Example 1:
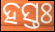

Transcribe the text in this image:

ହସ୍ତଃ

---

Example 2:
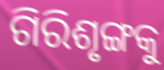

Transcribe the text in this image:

ଗିରିଶୃଙ୍ଗକୁ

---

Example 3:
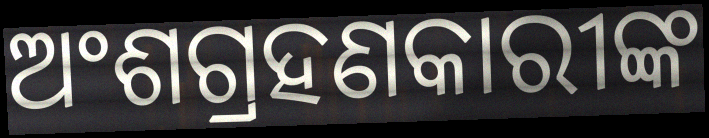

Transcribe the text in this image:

ଅଂଶଗ୍ରହଣକାରୀଙ୍କ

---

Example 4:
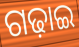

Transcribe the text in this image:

ଗଢ଼ାଇ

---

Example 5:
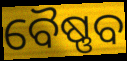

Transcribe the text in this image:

ବୈଷ୍ଣବ